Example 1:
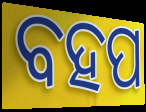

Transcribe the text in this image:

ବହପ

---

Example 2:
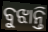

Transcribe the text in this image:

ବୁଝାନ୍ତି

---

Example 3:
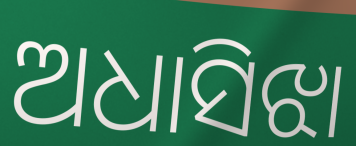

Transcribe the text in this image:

ଅଧାସିଝା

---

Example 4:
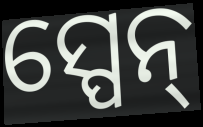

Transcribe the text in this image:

ସ୍ପେନ୍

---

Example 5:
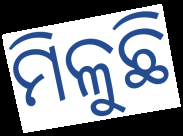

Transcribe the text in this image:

ମିଳୁଛି